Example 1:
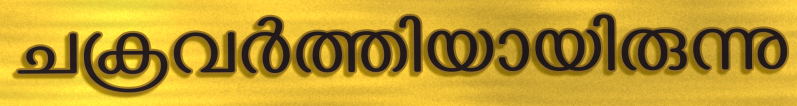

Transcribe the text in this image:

ചക്രവർത്തിയായിരുന്നു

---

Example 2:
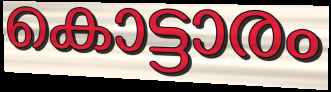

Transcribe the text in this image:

കൊട്ടാരം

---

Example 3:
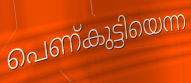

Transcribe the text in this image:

പെണ്കുട്ടിയെന്ന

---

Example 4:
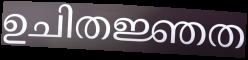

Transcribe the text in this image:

ഉചിതജ്ഞത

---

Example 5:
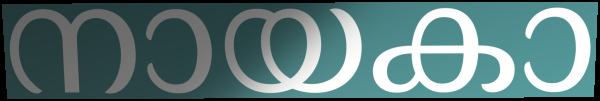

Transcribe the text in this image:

നായകാ